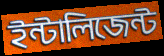
ইন্টালিজেন্ট